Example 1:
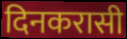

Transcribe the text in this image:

दिनकरासी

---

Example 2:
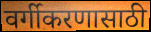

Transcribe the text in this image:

वर्गीकरणासाठी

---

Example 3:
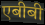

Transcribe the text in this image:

एबीबी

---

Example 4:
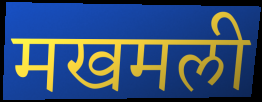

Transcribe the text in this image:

मखमली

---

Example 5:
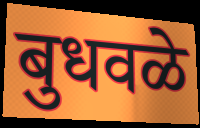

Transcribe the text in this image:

बुधवळे